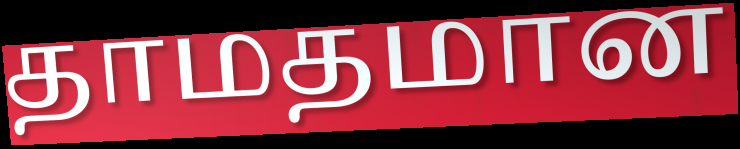
தாமதமான